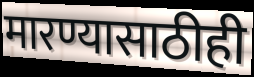
मारण्यासाठीही